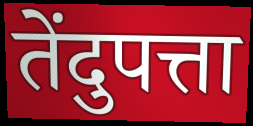
तेंदुपत्ता